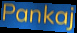
Pankaj